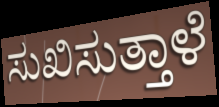
ಸುಖಿಸುತ್ತಾಳೆ